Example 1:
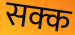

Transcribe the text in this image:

सक्क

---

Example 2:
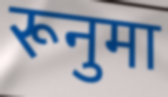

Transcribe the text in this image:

रूनुमा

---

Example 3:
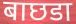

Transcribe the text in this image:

बाछडा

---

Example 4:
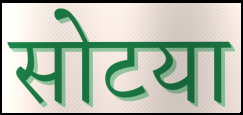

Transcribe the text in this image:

सोटया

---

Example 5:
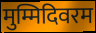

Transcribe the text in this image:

मुम्मिदिवरम